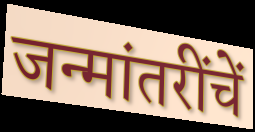
जन्मांतरींचें